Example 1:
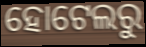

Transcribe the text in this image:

ହୋଟେଲରୁ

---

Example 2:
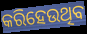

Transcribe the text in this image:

କରିହେଉଥିବ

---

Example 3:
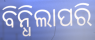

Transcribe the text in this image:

ବିନ୍ଧିଲାପରି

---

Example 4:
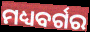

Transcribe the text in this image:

ମଧ୍ୟବର୍ଗର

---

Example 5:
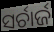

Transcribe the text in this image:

ସର୍ଚାର୍ଜ